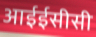
आईईसीसी